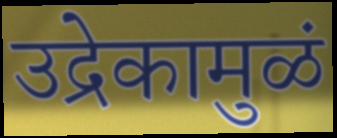
उद्रेकामुळं